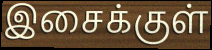
இசைக்குள்